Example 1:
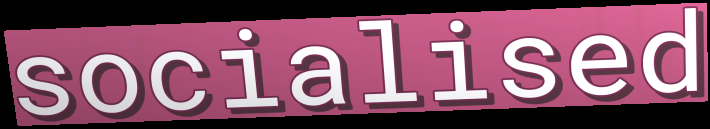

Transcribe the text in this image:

socialised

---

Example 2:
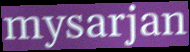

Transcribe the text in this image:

mysarjan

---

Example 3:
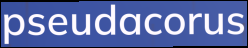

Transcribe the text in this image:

pseudacorus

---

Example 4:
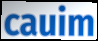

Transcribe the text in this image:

cauim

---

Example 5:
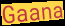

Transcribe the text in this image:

Gaana